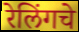
रेलिंगचे